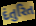
દંતુરિત